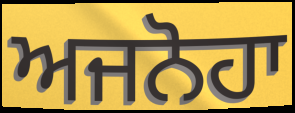
ਅਜਨੋਹਾ